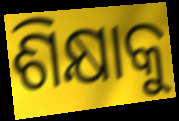
ଶିକ୍ଷାକୁ